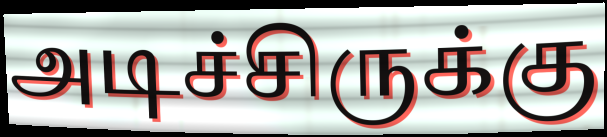
அடிச்சிருக்கு